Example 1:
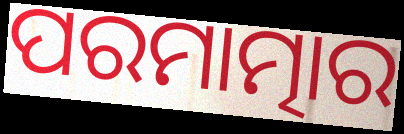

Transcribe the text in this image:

ପରମାତ୍ମାର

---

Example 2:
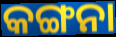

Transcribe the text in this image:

କଙ୍ଗନା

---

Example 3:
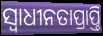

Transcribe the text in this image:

ସ୍ଵାଧୀନତାପ୍ରାପ୍ତି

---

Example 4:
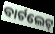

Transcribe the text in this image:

ବାର୍ଟଲେଟ୍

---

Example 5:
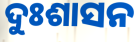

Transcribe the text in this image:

ଦୁଃଶାସନ